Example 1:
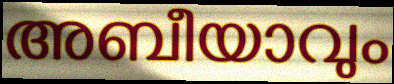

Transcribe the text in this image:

അബീയാവും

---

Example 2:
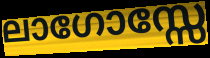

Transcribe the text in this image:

ലാഗോസ്സേ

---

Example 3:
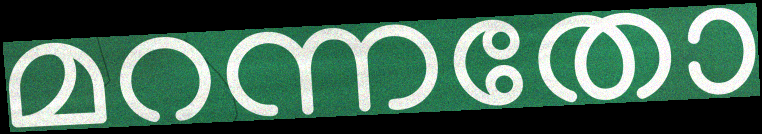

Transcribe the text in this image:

മറന്നതോ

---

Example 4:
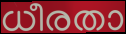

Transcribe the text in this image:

ധീരതാ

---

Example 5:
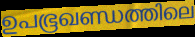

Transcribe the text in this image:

ഉപഭൂഖണ്ഡത്തിലെ